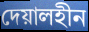
দেয়ালহীন